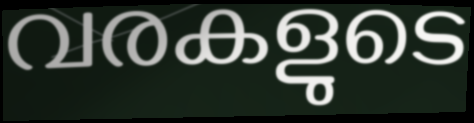
വരകളുടെ